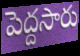
పెద్దసారు